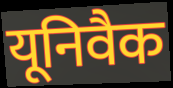
यूनिवैक